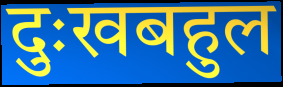
दुःखबहुल